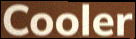
Cooler